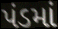
પંડમાં